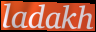
ladakh